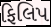
ફિલિપ